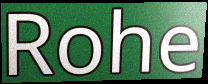
Rohe